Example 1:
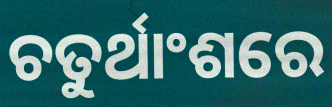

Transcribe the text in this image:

ଚତୁର୍ଥାଂଶରେ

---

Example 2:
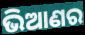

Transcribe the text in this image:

ଭିଆଣର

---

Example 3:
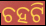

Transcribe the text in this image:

ଚହଟି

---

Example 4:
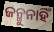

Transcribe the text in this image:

ଜନ୍ମୁନାହିଁ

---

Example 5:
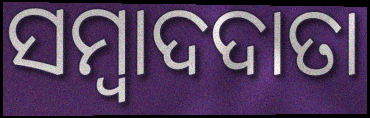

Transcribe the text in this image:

ସମ୍ବାଦଦାତା